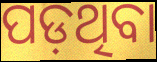
ପଡ଼ଥିବା